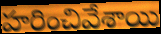
హరించివేశాయి